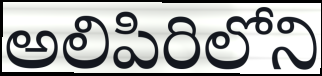
అలిపిరిలోని